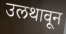
उलथावून